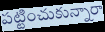
పట్టించుకున్నారా